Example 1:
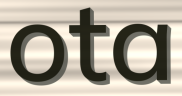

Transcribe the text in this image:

ota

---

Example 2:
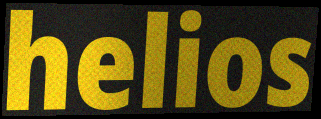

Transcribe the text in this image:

helios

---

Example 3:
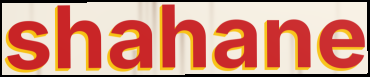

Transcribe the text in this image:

shahane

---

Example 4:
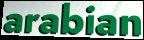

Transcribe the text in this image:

arabian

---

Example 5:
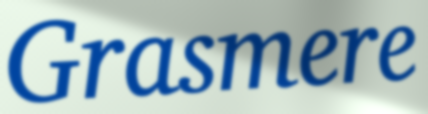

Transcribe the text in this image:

Grasmere